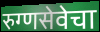
रुग्णसेवेचा